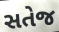
સતેજ